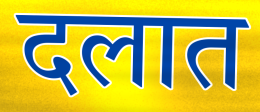
दलात